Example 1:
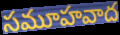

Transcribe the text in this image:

సమూహవాద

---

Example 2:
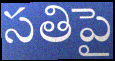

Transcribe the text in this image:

సతిపై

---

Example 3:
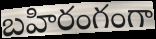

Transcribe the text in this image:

బహిరంగంగా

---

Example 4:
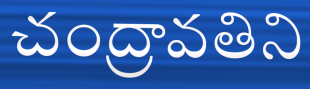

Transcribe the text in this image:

చంద్రావతిని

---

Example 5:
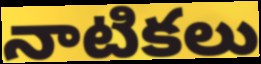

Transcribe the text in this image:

నాటికలు